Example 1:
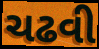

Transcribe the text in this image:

ચઢવી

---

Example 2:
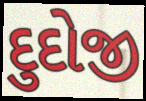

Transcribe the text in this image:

દુદોજી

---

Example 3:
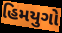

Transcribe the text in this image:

હિમયુગો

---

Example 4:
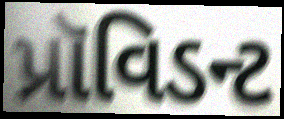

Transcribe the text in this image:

પ્રૉવિડન્ટ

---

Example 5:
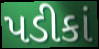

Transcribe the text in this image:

પડીકાં